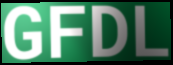
GFDL